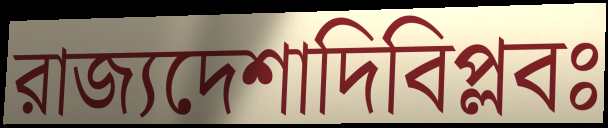
রাজ্যদেশাদিবিপ্লবঃ